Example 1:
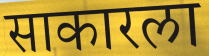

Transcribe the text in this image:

साकारला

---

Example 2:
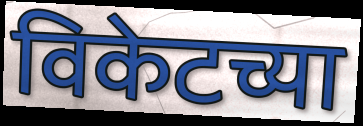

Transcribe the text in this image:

विकेटच्या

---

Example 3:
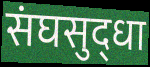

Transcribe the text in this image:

संघसुद्धा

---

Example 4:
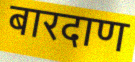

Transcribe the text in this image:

बारदाण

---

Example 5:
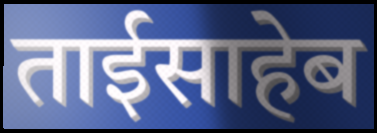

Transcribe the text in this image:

ताईसाहेब